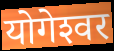
योगेश्‍वर